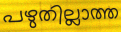
പഴുതില്ലാത്ത